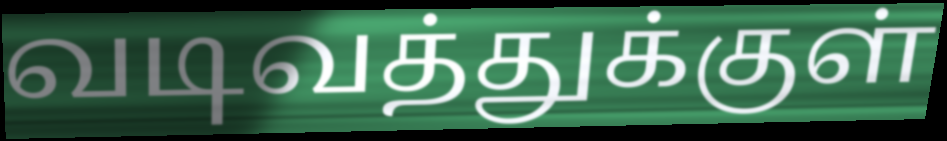
வடிவத்துக்குள்